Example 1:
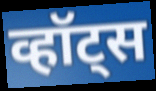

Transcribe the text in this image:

व्हॉट्स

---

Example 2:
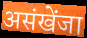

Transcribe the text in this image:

असंखेंजा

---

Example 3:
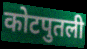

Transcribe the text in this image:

कोटपुतली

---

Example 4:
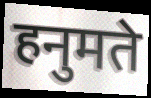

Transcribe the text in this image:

हनुमते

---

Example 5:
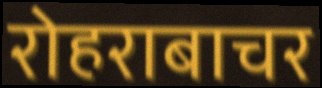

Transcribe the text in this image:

रोहराबाचर